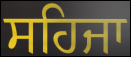
ਸਹਿਜਾ